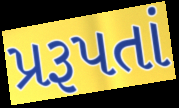
પ્રરૂપતાં